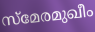
സ്മേരമുഖീം